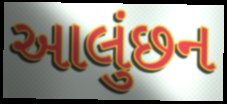
આલુંછન